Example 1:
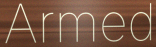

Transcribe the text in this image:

Armed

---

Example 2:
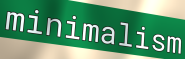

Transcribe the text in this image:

minimalism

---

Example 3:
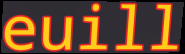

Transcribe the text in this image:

euill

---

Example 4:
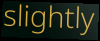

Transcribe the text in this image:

slightly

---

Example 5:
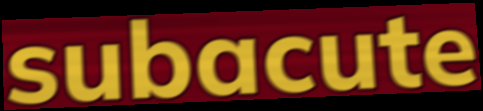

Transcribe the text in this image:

subacute